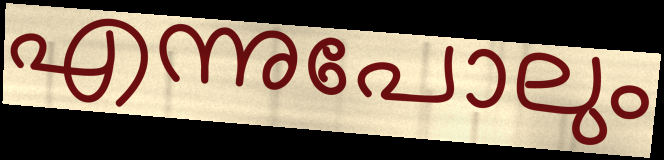
എന്നുപോലും